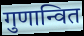
गुणान्वित